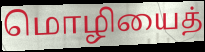
மொழியைத்